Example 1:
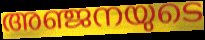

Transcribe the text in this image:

അഞ്ജനയുടെ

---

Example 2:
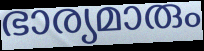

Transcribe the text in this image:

ഭാര്യമാരും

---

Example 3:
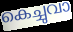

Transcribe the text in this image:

കെച്ചുവാ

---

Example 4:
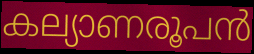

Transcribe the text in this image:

കല്യാണരൂപൻ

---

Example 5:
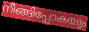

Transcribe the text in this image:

നീങ്ങിപ്പോകയും